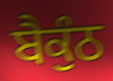
ਬੈਕੁੰਠ